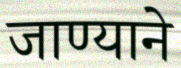
जाण्याने